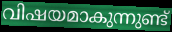
വിഷയമാകുന്നുണ്ട്